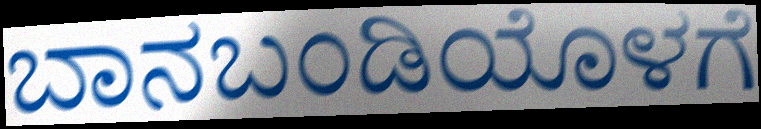
ಬಾನಬಂಡಿಯೊಳಗೆ